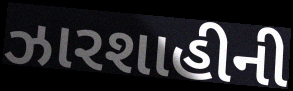
ઝારશાહીની